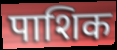
पाशिक